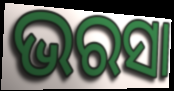
ଭରସା